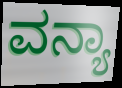
ವನ್ಯಾ